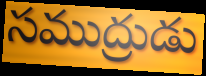
సముద్రుడు